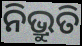
ନିଭ୍ରୁତି